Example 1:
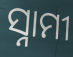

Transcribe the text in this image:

ସ୍ନାମୀ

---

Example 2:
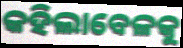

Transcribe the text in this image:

କହିଲାବେଳକୁ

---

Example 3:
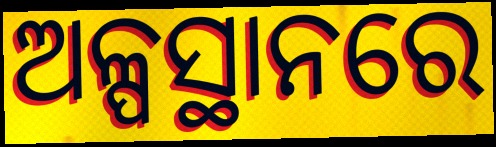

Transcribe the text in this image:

ଅଳ୍ପସ୍ଥାନରେ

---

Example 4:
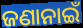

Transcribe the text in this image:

ଜଣାନାଇଁ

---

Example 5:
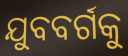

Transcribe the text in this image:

ଯୁବବର୍ଗକୁ